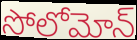
సోలోమోన్